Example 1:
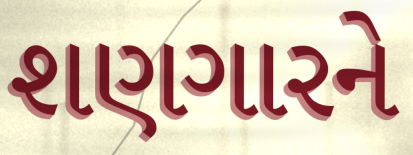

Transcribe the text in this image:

શણગારને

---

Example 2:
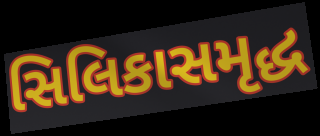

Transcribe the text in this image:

સિલિકાસમૃદ્ધ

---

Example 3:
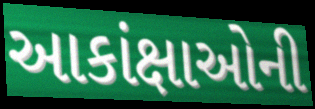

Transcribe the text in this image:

આકાંક્ષાઓની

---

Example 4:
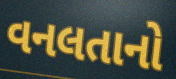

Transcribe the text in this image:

વનલતાનો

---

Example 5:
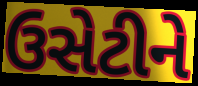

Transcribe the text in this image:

ઉસેટીને